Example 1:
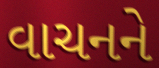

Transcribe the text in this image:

વાચનને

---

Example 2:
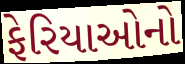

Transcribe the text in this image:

ફેરિયાઓનો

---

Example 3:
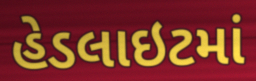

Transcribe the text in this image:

હેડલાઇટમાં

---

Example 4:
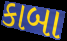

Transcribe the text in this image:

કાબા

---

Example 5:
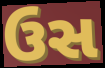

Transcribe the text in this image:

ઉસ